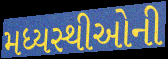
મધ્યસ્થીઓની